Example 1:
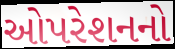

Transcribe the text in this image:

ઓપરેશનનો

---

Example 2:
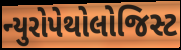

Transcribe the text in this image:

ન્યુરોપેથોલોજિસ્ટ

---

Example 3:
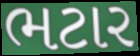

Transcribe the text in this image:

ભટાર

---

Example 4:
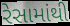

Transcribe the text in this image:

રેસામાંથી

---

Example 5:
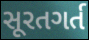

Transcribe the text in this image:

સૂરતગર્ત